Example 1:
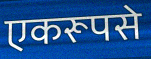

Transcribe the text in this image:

एकरूपसे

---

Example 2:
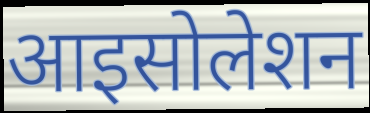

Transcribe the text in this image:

आइसोलेशन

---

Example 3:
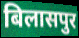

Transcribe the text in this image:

बिलासपुर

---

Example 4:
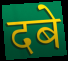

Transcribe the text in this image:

दबे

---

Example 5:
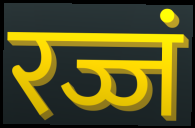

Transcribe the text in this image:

रज्जं